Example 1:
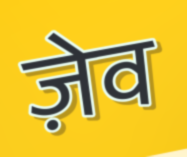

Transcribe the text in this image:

ज़ेव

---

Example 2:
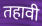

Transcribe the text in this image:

तहावी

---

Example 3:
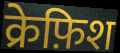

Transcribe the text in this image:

क्रेफ़िश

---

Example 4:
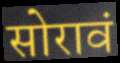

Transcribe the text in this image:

सोरावं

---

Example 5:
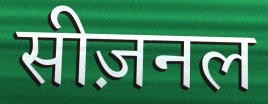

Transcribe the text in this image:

सीज़नल